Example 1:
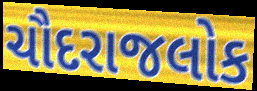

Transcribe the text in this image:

ચૌદરાજલોક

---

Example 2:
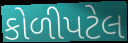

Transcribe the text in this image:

કોળીપટેલ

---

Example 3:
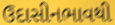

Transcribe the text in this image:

ઉદાસીનભાવથી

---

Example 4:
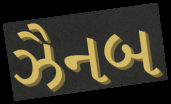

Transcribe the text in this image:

ઝૈનબ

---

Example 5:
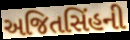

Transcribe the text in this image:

અજિતસિંહની